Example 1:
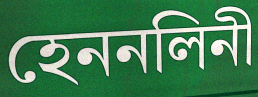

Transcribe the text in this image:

হেননলিনী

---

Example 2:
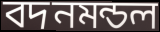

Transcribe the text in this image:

বদনমন্ডল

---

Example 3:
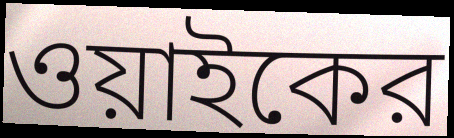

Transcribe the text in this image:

ওয়াইকের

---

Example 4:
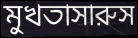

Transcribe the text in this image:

মুখতাসারুস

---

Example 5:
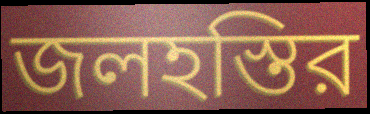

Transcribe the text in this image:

জলহস্তির